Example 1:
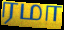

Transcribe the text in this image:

ரமா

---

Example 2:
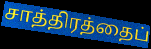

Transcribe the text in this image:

சாத்திரத்தைப்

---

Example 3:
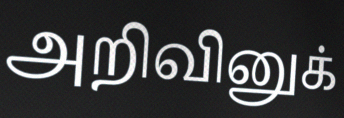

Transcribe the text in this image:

அறிவினுக்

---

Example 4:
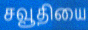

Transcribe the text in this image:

சவூதியை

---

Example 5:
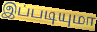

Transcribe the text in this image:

இப்படியுமா